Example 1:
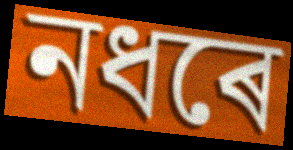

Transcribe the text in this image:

নধৰে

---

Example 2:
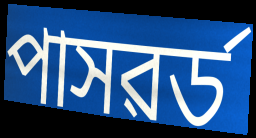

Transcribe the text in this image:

পাসৱৰ্ড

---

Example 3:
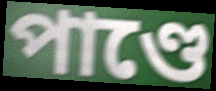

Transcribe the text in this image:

পাণ্ডে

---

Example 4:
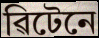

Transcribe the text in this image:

ৱিটেনে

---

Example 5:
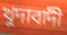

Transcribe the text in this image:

খুদাবাদী